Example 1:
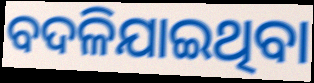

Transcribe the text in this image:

ବଦଳିଯାଇଥିବା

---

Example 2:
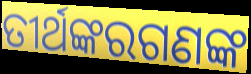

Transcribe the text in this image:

ତୀର୍ଥଙ୍କରଗଣଙ୍କ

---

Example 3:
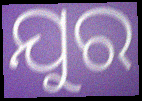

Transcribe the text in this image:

ଯୁର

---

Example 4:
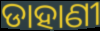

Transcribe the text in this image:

ଡାହାଣୀ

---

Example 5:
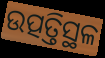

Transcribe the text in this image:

ଉତ୍ପତ୍ତିସ୍ଥଳ